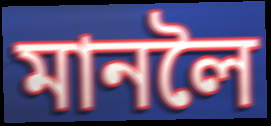
মানলৈ